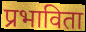
प्रभाविता